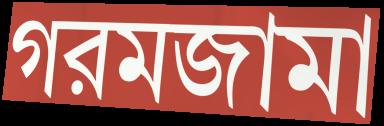
গরমজামা